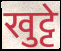
खुट्टे